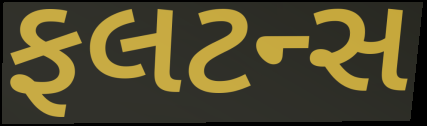
ફલટન્સ